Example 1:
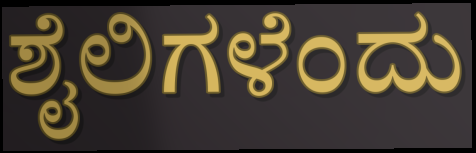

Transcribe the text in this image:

ಶೈಲಿಗಳೆಂದು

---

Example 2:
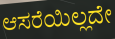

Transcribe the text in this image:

ಆಸರೆಯಿಲ್ಲದೇ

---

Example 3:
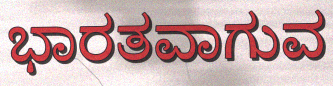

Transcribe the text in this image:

ಭಾರತವಾಗುವ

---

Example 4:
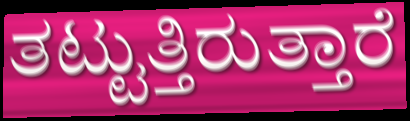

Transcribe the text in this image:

ತಟ್ಟುತ್ತಿರುತ್ತಾರೆ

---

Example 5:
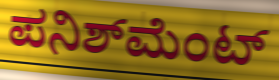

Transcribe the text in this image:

ಪನಿಶ್‌ಮೆಂಟ್